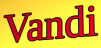
Vandi